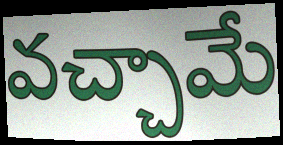
వచ్చామే